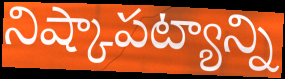
నిష్కాపట్యాన్ని